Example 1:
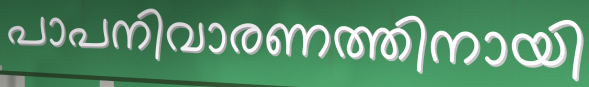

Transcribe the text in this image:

പാപനിവാരണത്തിനായി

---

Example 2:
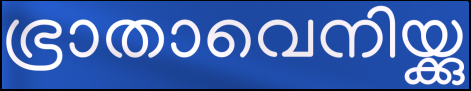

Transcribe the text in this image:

ഭ്രാതാവെനിയ്ക്കു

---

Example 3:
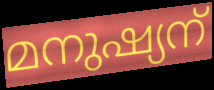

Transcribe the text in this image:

മനുഷ്യന്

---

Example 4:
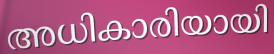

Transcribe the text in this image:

അധികാരിയായി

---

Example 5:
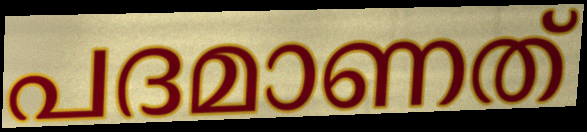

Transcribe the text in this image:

പദമാണത്